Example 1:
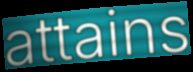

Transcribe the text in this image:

attains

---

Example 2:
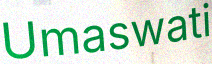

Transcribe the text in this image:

Umaswati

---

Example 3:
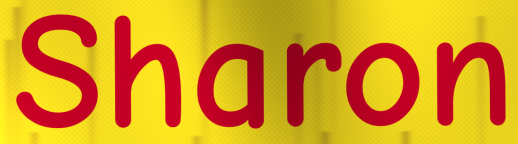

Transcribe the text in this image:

Sharon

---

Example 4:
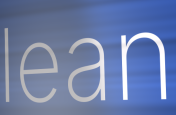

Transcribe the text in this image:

lean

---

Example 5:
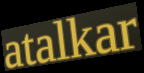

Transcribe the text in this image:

atalkar